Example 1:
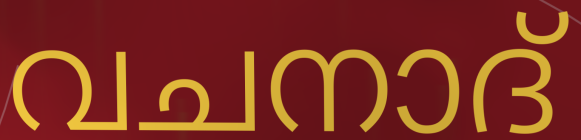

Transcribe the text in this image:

വചനാദ്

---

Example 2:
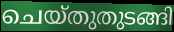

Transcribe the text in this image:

ചെയ്തുതുടങ്ങി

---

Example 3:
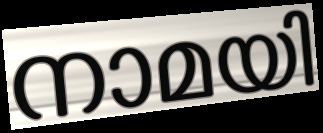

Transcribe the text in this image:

നാമയി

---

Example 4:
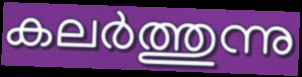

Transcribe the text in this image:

കലർത്തുന്നു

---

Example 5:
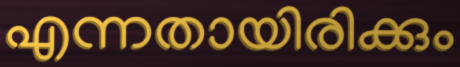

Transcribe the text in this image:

എന്നതായിരിക്കും